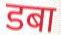
डबा